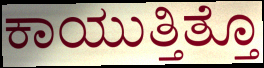
ಕಾಯುತ್ತಿತ್ತೊ